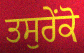
ਤਸੁਰੇਂਕੋ